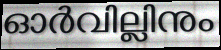
ഓർവില്ലിനും